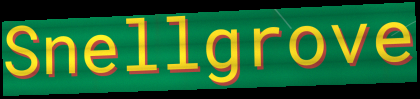
Snellgrove